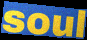
soul